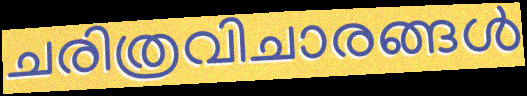
ചരിത്രവിചാരങ്ങൾ